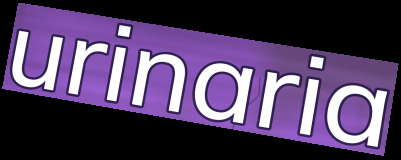
urinaria